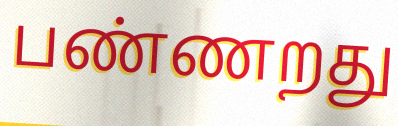
பண்ணறது